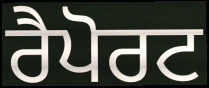
ਰੈਪੋਰਟ